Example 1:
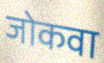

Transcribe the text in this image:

जोकवा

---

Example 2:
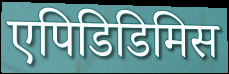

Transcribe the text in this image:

एपिडिडिमिस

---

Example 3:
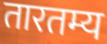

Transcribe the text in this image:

तारतम्य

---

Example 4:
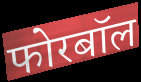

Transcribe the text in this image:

फोरबॉल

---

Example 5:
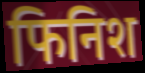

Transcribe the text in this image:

फिनिश